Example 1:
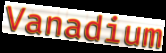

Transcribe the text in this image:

Vanadium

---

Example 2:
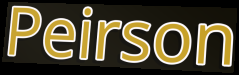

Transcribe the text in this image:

Peirson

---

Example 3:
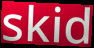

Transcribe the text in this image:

skid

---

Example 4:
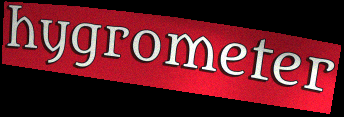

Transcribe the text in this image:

hygrometer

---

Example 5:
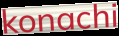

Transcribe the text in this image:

konachi